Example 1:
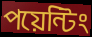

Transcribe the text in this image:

পয়েন্টিং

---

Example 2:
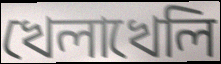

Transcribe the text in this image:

খেলাখেলি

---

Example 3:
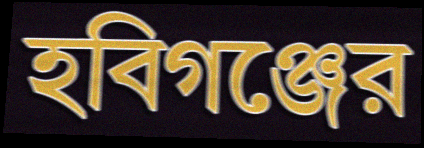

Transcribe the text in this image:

হবিগঞ্জের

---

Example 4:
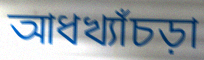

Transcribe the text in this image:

আধখ্যাঁচড়া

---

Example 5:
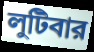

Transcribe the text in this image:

লুটিবার